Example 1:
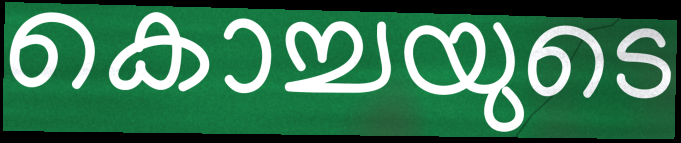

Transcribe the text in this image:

കൊച്ചയുടെ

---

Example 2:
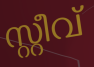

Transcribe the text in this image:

സ്റ്റീവ്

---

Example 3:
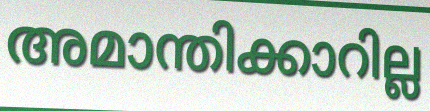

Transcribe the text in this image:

അമാന്തിക്കാറില്ല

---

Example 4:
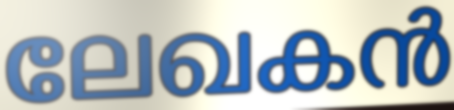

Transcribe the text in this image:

ലേഖകൻ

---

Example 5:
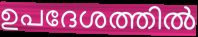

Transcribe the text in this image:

ഉപദേശത്തിൽ